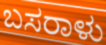
ಬಸರಾಳು